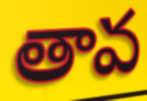
తావ